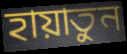
হায়াতুন